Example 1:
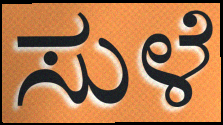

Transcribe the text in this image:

ಸುಳೆ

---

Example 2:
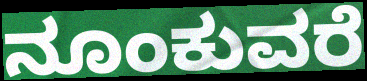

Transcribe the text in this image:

ನೂಂಕುವರೆ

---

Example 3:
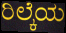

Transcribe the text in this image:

ರಿಲ್ಕೆಯ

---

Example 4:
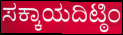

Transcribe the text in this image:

ಸಕ್ಕಾಯದಿಟ್ಠಿಂ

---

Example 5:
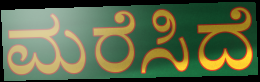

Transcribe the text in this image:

ಮರೆಸಿದೆ